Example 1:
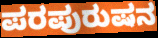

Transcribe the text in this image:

ಪರಪುರುಷನ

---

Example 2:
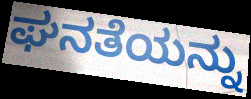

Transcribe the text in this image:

ಘನತೆಯನ್ನು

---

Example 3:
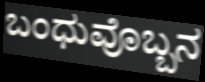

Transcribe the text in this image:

ಬಂಧುವೊಬ್ಬನ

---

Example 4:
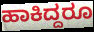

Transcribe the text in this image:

ಹಾಕಿದ್ದರೂ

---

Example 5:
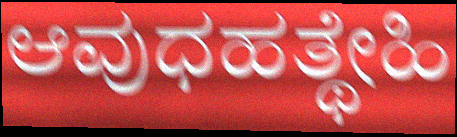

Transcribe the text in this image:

ಆವುಧಹತ್ಥೇಹಿ